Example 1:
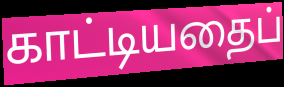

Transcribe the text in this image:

காட்டியதைப்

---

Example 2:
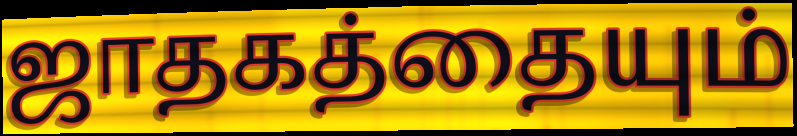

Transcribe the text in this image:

ஜாதகத்தையும்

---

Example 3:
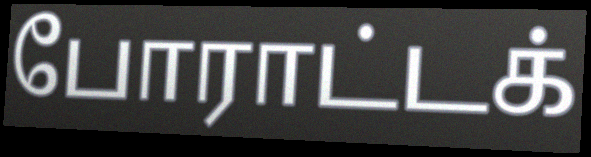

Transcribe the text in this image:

போராட்டக்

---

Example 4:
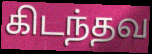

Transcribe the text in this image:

கிடந்தவ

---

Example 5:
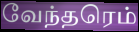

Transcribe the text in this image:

வேந்தரெம்